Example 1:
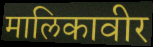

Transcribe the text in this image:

मालिकावीर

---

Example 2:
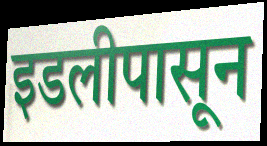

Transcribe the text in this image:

इडलीपासून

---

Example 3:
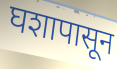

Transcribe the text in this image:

घशापासून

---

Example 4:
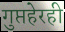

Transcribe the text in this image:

गुप्तहेरही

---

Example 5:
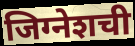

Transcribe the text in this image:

जिग्नेशची